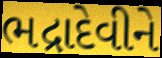
ભદ્રાદેવીને